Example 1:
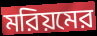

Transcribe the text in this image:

মরিয়মের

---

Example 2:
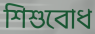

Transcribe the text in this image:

শিশুবোধ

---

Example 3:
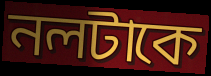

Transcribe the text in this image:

নলটাকে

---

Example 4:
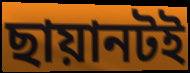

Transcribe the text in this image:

ছায়ানটই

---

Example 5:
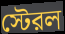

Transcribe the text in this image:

স্টেরল